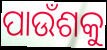
ପାଉଁଶକୁ